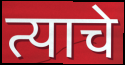
त्याचे